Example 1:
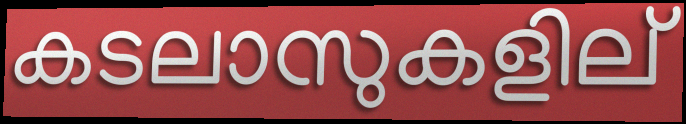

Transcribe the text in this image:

കടലാസുകളില്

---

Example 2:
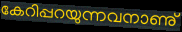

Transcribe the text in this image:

കേറിപ്പറയുന്നവനാണു്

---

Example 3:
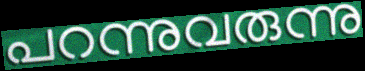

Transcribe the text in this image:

പറന്നുവരുന്നു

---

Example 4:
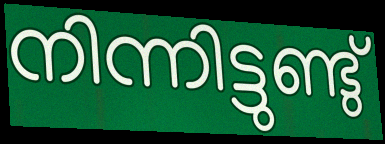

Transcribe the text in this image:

നിന്നിട്ടുണ്ടു്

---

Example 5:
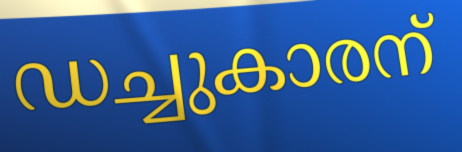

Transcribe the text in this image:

ഡച്ചുകാരന്